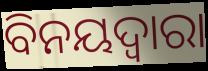
ବିନୟଦ୍ବାରା